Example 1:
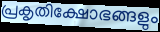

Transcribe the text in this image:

പ്രകൃതിക്ഷോഭങ്ങളും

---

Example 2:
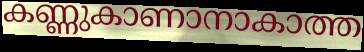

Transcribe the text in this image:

കണ്ണുകാണാനാകാത്ത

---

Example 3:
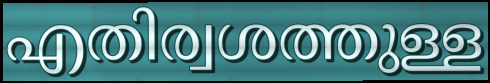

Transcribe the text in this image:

എതിര്വശത്തുള്ള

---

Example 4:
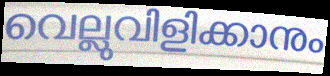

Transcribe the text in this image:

വെല്ലുവിളിക്കാനും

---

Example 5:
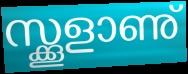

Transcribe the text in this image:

സ്ക്കൂളാണു്